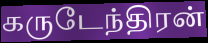
கருடேந்திரன்